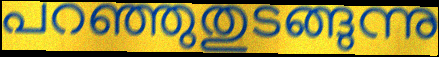
പറഞ്ഞുതുടങ്ങുന്നു